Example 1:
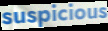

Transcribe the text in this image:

suspicious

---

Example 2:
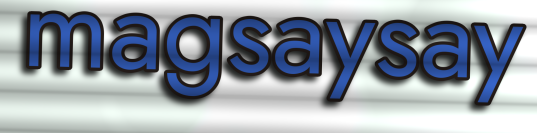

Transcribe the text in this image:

magsaysay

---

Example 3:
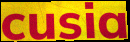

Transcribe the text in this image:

cusia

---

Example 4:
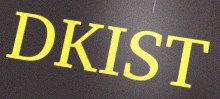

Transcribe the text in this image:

DKIST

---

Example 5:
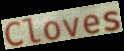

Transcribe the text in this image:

Cloves